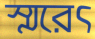
স্মরেৎ